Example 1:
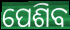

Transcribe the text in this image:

ପେଶିବ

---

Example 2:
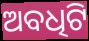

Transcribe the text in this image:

ଅବଧିଟି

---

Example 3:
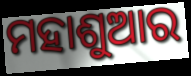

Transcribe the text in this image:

ମହାଶୁଆର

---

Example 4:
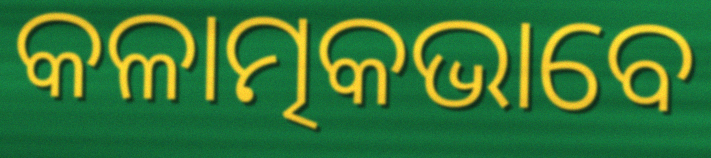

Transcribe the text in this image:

କଳାତ୍ମକଭାବେ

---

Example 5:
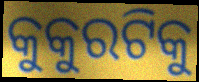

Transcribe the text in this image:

କୁକୁରଟିକୁ